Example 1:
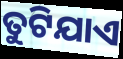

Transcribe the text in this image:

ତୁଟିଯାଏ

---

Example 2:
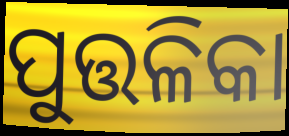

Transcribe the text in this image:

ପୁତ୍ତଳିକା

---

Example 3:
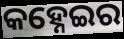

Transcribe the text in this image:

କହ୍ନେଇର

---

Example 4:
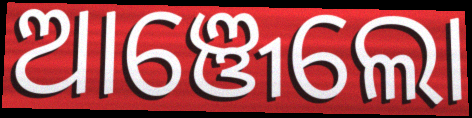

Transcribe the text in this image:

ଆଞ୍ଜେଲୋ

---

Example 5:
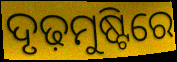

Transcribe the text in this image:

ଦୃଢ଼ମୁଷ୍ଟିରେ